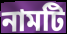
নামটি